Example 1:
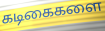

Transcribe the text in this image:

கடிகைகளை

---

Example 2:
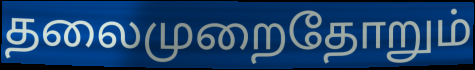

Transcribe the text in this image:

தலைமுறைதோறும்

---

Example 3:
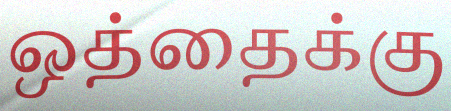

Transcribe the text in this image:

ஒத்தைக்கு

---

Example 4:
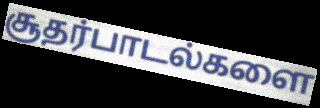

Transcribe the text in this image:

சூதர்பாடல்களை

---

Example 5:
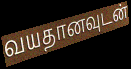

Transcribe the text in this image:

வயதானவுடன்